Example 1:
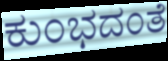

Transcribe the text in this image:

ಕುಂಭದಂತೆ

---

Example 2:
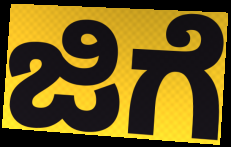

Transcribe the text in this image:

ಜಿಗೆ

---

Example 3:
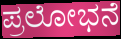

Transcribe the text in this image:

ಪ್ರಲೋಭನೆ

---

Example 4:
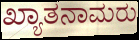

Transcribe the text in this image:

ಖ್ಯಾತನಾಮರು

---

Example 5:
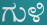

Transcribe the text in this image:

ಗುಳಿ